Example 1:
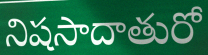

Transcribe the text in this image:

నిషసాదాతురో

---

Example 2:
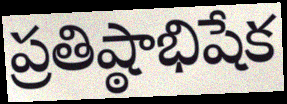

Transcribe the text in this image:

ప్రతిష్ఠాభిషేక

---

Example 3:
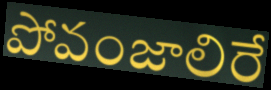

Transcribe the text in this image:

పోవంజాలిరే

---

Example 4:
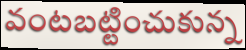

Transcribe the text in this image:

వంటబట్టించుకున్న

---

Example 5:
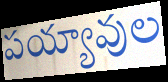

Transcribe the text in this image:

పయ్యావుల